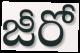
జీరో